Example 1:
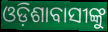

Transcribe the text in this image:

ଓଡ଼ିଶାବାସୀଙ୍କୁ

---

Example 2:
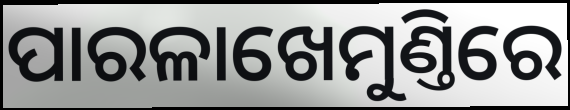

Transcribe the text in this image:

ପାରଳାଖେମୁଣ୍ତିରେ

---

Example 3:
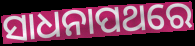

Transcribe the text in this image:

ସାଧନାପଥରେ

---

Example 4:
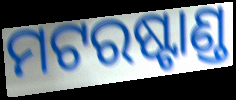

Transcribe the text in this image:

ମଟରଷ୍ଟାଣ୍ଡ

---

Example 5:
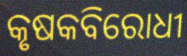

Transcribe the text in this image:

କୃଷକବିରୋଧୀ